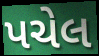
પચેલ